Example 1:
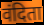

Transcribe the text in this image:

वंदिता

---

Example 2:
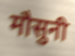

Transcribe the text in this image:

मौसुनी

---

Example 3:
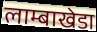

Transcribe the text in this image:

लाम्बाखेडा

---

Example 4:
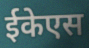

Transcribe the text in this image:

ईकेएस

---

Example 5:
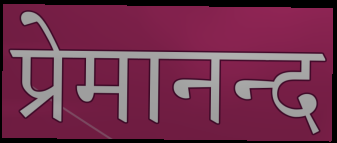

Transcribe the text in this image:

प्रेमानन्द